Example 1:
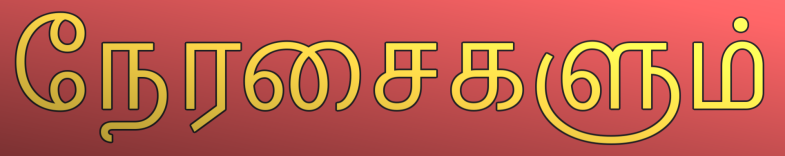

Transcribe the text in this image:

நேரசைகளும்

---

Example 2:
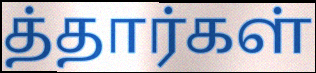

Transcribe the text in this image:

த்தார்கள்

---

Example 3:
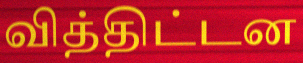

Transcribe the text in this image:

வித்திட்டன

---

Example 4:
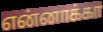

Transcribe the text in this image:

என்னாக்கா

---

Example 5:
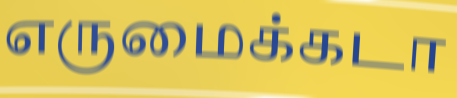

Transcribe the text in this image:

எருமைக்கடா